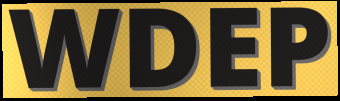
WDEP